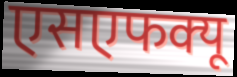
एसएफक्यू